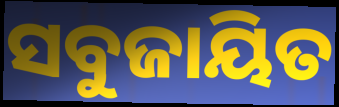
ସବୁଜାୟିତ